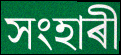
সংহাৰী